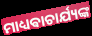
ମାଧ୍ୟଵାଚାର୍ଯ୍ୟଙ୍କ